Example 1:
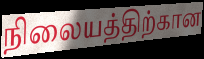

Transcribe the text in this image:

நிலையத்திற்கான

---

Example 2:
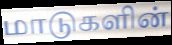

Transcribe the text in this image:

மாடுகளின்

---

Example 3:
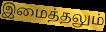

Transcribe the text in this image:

இமைத்தலும்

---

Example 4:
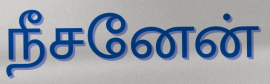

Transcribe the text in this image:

நீசனேன்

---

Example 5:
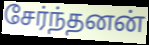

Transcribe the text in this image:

சேர்ந்தனன்